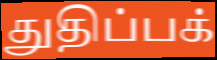
துதிப்பக்